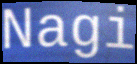
Nagi